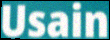
Usain